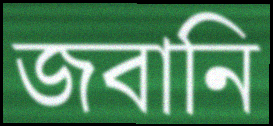
জবানি